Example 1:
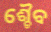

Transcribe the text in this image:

ଶ୍ଚୈବ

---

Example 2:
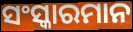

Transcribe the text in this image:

ସଂସ୍କାରମାନ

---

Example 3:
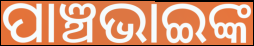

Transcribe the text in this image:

ପାଞ୍ଚଭାଇଙ୍କ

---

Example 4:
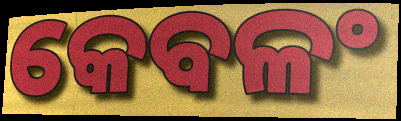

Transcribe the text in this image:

କେବଳଂ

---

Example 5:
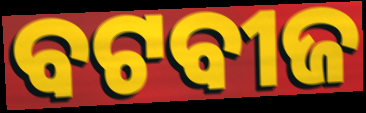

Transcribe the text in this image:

ବଟବୀଜ